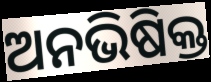
ଅନଭିଷିକ୍ତ